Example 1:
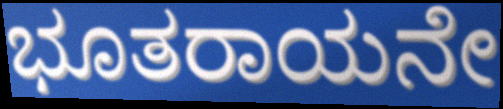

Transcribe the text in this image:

ಭೂತರಾಯನೇ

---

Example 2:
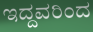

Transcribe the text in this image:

ಇದ್ದವರಿಂದ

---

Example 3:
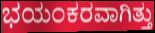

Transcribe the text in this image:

ಭಯಂಕರವಾಗಿತ್ತು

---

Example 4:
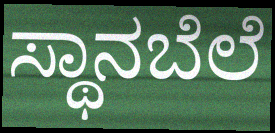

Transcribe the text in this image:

ಸ್ಥಾನಬೆಲೆ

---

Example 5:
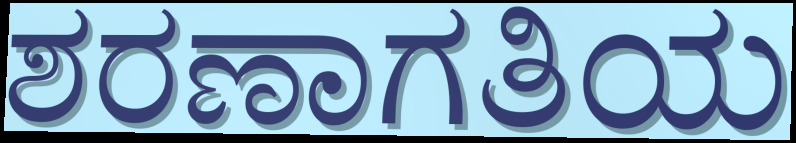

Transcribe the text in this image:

ಶರಣಾಗತಿಯ